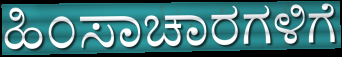
ಹಿಂಸಾಚಾರಗಳಿಗೆ